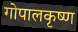
गोपालकृष्ण